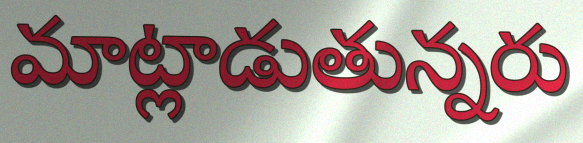
మాట్లాడుతున్నరు